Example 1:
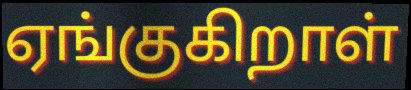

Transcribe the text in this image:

ஏங்குகிறாள்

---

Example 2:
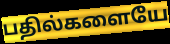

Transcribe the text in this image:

பதில்களையே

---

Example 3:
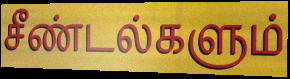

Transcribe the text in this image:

சீண்டல்களும்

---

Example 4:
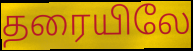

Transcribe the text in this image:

தரையிலே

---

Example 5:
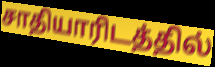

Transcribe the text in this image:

சாதியாரிடத்தில்